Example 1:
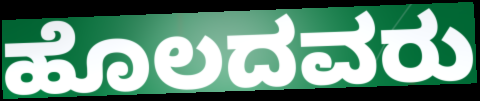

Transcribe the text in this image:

ಹೊಲದವರು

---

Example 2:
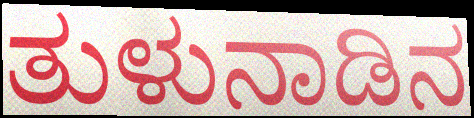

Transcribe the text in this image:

ತುಳುನಾಡಿನ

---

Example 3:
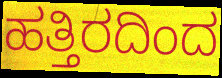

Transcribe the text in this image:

ಹತ್ತಿರದಿಂದ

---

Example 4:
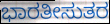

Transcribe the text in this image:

ಭಾರತೀಸುತರ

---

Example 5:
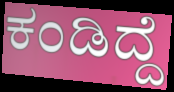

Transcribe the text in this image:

ಕಂಡಿದ್ದೆ